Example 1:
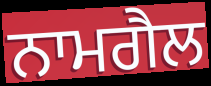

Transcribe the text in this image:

ਨਾਮਗੈਲ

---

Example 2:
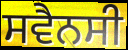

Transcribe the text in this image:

ਸਵੈਨਸੀ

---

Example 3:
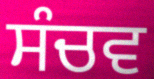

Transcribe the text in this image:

ਸੰਚਵ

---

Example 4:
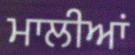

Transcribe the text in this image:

ਮਾਲੀਆਂ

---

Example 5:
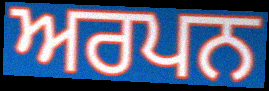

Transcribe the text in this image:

ਅਰਪਨ